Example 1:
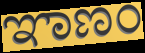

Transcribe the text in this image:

ಞಾಣಂ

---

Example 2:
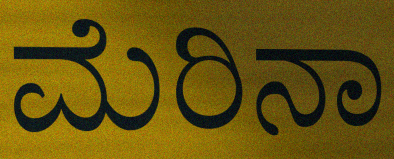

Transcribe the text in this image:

ಮೆರಿನಾ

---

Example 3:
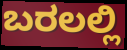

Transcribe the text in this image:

ಬರಲಲ್ಲಿ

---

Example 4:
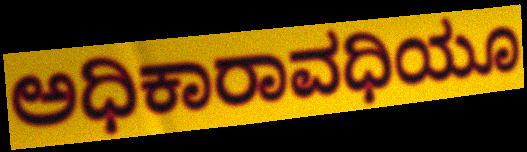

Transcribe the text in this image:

ಅಧಿಕಾರಾವಧಿಯೂ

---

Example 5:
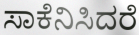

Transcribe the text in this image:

ಸಾಕೆನಿಸಿದರೆ